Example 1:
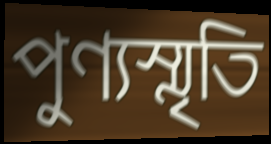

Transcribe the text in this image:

পুণ্যস্মৃতি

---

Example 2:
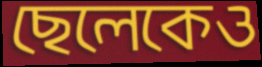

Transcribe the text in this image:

ছেলেকেও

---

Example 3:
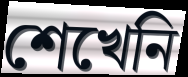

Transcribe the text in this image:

শেখেনি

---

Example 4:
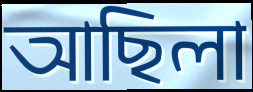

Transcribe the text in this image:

আছিলা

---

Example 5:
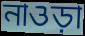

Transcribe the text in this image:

নাওড়া